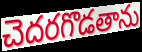
చెదరగొడతాను